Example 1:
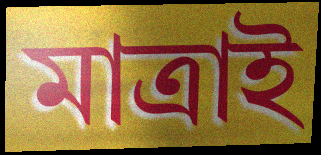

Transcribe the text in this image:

মাত্রাই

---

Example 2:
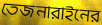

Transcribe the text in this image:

তেজনারাইনের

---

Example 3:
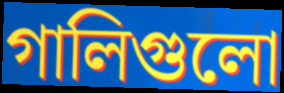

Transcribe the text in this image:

গালিগুলো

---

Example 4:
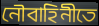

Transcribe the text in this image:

নৌবাহিনীতে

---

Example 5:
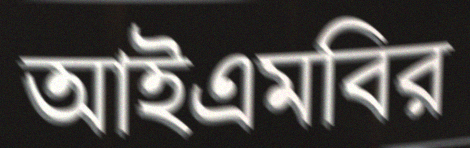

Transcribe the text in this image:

আইএমবির